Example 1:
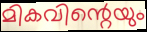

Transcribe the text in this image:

മികവിന്റെയും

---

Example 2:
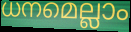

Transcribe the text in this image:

ധനമെല്ലാം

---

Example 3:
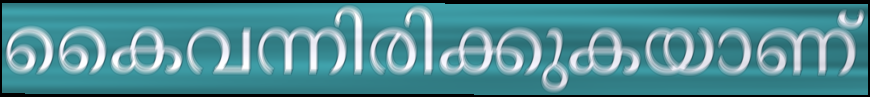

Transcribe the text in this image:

കൈവന്നിരിക്കുകയാണ്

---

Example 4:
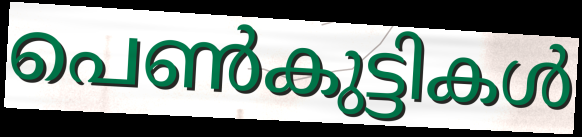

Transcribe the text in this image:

പെൺകുട്ടികൾ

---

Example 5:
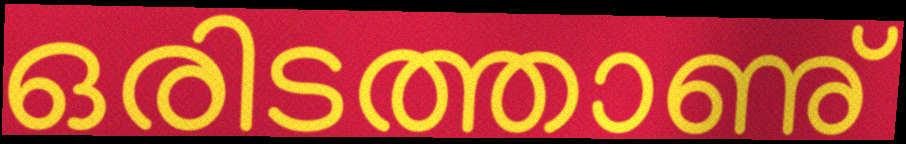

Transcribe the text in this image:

ഒരിടത്താണു്